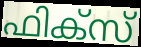
ഫിക്സ്